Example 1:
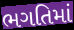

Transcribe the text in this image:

ભગતિમાં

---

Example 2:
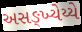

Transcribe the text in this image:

અસઙ્ખ્યેય્યે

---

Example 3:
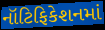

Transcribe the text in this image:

નૉટિફિકેશનમાં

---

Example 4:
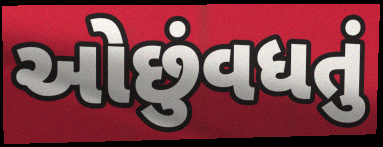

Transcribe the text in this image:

ઓછુંવધતું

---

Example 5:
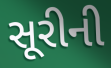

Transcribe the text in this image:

સૂરીની